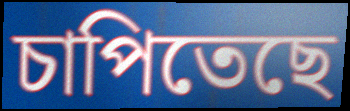
চাপিতেছে